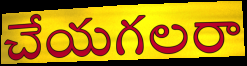
చేయగలరా